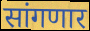
सांगणार